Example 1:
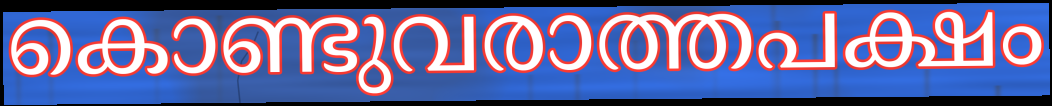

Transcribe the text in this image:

കൊണ്ടുവരാത്തപക്ഷം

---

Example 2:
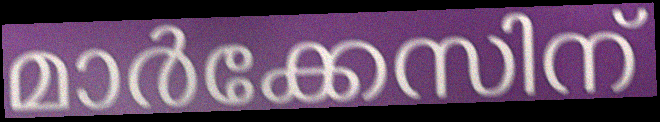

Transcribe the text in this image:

മാർക്കേസിന്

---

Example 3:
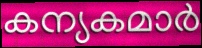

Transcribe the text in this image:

കന്യകമാർ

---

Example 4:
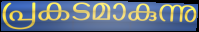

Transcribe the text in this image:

പ്രകടമാകുന്നു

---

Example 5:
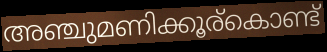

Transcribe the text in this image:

അഞ്ചുമണിക്കൂര്കൊണ്ട്